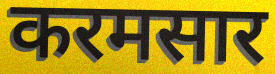
करमसार